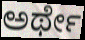
ಅರ್ಥೇ